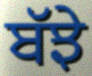
ਬੱਝੇ